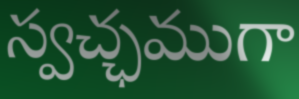
స్వచ్ఛముగా